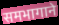
समभागाने